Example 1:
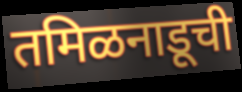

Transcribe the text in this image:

तमिळनाडूची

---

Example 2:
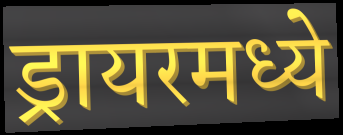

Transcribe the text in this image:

ड्रायरमध्ये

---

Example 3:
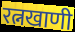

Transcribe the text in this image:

रत्नखाणी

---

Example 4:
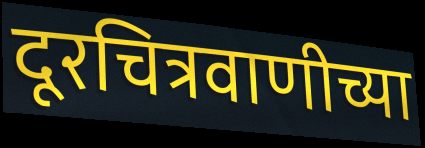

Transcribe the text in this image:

दूरचित्रवाणीच्या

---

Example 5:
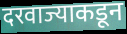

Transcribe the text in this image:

दरवाज्याकडून